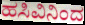
ಹಸಿವಿನಿಂದ